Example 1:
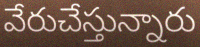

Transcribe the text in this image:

వేరుచేస్తున్నారు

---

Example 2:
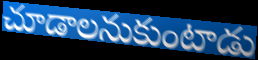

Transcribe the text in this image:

చూడాలనుకుంటాడు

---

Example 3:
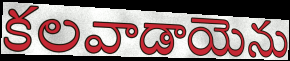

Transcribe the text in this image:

కలవాడాయెను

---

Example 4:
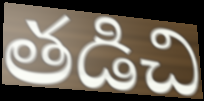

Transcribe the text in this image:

తడిచి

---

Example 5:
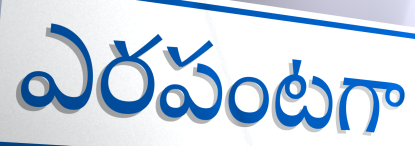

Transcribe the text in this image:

ఎరపంటగా